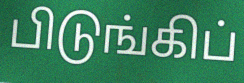
பிடுங்கிப்